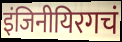
इंजिनीयिरगचं